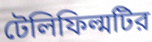
টেলিফিল্মটির